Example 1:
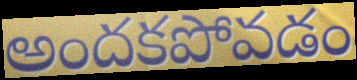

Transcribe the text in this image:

అందకపోవడం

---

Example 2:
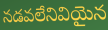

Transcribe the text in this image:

నడవలేనివియైన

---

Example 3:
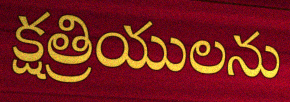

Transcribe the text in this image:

క్షత్రియులను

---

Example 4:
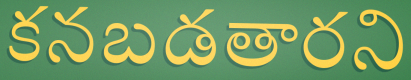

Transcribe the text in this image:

కనబడతారని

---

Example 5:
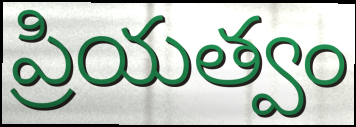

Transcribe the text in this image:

ప్రియత్వం